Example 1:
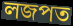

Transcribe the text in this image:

লজপত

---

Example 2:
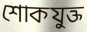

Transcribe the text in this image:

শোকযুক্ত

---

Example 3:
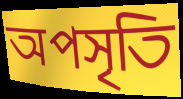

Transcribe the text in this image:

অপসৃতি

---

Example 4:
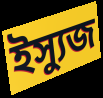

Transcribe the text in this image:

ইস্যুজ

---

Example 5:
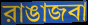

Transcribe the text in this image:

রাঙাজবা